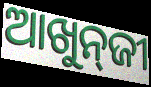
ଆଖୁନ୍‍ଜୀ